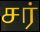
சர்